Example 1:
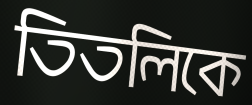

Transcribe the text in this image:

তিতলিকে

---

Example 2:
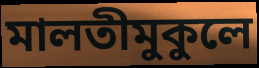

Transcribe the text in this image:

মালতীমুকুলে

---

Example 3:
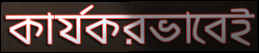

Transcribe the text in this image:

কার্যকরভাবেই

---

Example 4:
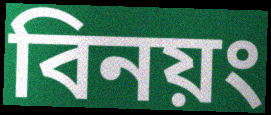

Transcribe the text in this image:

বিনয়ং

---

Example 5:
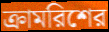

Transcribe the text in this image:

ক্রামরিশের